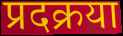
प्रदक्रया